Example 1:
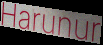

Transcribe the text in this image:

Harunur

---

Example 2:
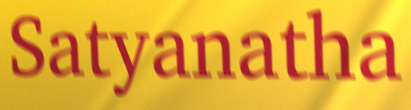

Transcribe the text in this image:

Satyanatha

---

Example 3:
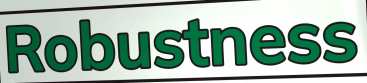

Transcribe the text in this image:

Robustness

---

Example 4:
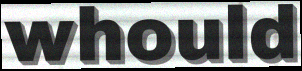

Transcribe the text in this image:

whould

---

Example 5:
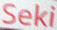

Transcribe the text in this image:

Seki